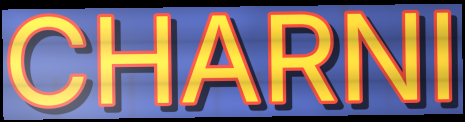
CHARNI